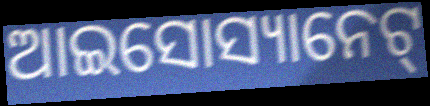
ଆଇସୋସ୍ୟାନେଟ୍